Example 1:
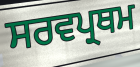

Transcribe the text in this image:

ਸਰਵਪ੍ਰਥਮ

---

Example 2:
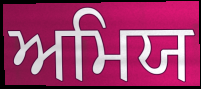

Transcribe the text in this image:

ਅਮਿਯ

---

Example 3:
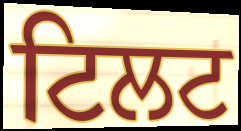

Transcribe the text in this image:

ਟਿਲਟ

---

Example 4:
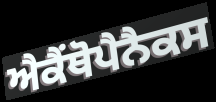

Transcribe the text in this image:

ਐਕੈਂਥੋਪੈਨੈਕਸ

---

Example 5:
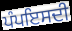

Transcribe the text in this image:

ਪੰਪਇਸਦੀ